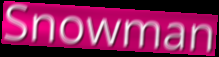
Snowman